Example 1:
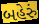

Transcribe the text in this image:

બહેરું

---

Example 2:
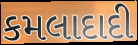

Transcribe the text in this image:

કમલાદાદી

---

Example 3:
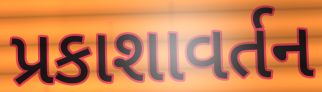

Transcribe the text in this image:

પ્રકાશાવર્તન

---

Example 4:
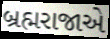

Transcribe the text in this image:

બ્રહ્મરાજાએ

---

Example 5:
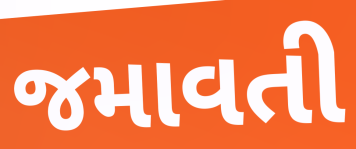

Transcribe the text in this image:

જમાવતી